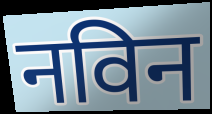
नविन